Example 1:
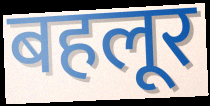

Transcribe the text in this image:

बहलूर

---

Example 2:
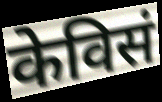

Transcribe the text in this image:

केविसं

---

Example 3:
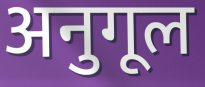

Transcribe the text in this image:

अनुगूल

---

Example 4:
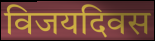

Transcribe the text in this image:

विजयदिवस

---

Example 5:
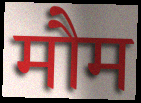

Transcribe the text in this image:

मौम